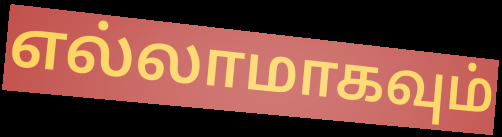
எல்லாமாகவும்